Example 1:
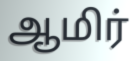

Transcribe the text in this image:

ஆமிர்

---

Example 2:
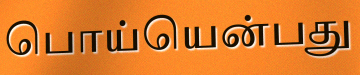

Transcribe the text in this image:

பொய்யென்பது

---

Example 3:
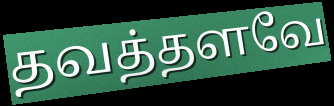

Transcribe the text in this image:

தவத்தளவே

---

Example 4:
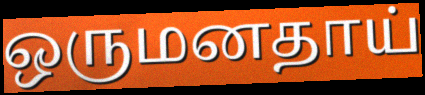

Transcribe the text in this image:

ஒருமனதாய்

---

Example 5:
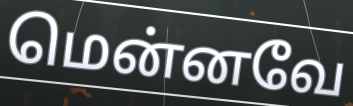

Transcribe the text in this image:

மென்னவே